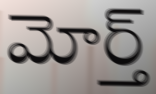
మోర్త్